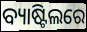
ବ୍ୟାଷ୍ଟିଲରେ